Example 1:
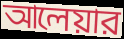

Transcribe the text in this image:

আলেয়ার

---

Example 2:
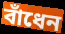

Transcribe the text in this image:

বাঁধেন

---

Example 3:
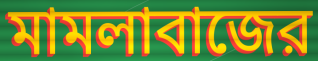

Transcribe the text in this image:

মামলাবাজের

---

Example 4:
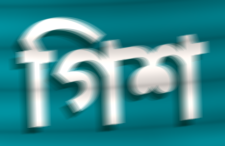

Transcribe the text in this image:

গিশ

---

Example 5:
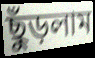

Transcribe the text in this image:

ছুঁড়লাম